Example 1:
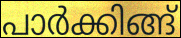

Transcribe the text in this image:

പാർക്കിങ്ങ്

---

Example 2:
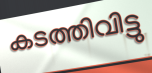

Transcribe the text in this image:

കടത്തിവിട്ടു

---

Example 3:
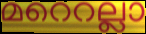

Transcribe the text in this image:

മറെറല്ലാ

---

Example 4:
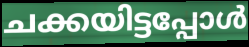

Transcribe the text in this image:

ചക്കയിട്ടപ്പോൾ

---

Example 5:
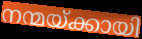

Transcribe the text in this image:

നന്മയ്ക്കായി